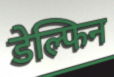
डेल्फिन